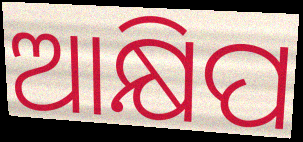
ଆକ୍ଷିପ